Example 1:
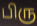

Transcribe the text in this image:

பிரு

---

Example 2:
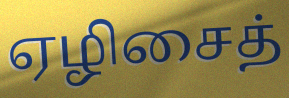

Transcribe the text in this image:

ஏழிசைத்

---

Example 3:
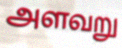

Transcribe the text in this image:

அளவறு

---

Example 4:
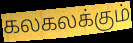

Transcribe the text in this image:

கலகலக்கும்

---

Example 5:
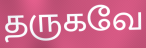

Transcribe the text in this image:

தருகவே